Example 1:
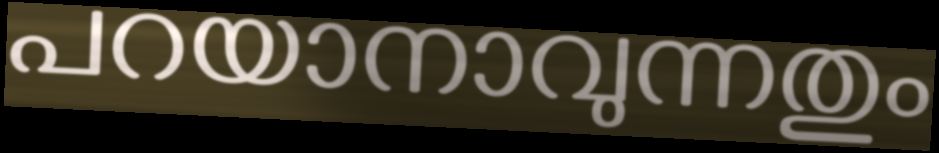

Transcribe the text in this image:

പറയാനാവുന്നതും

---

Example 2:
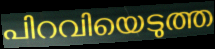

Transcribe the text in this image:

പിറവിയെടുത്ത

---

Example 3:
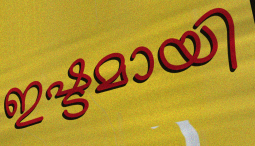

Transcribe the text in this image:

ഇഷ്ടമായി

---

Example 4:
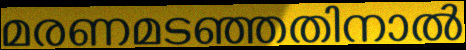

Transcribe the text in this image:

മരണമടഞ്ഞതിനാൽ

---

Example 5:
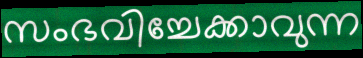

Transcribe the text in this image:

സംഭവിച്ചേക്കാവുന്ന